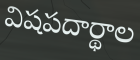
విషపదార్థాల